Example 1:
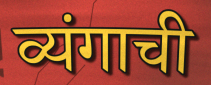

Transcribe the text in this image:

व्यंगाची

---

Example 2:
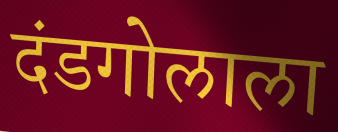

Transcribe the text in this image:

दंडगोलाला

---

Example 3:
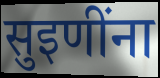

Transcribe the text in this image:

सुइणींना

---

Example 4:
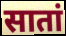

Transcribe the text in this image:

सातां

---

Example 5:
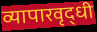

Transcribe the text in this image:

व्यापारवृद्धी